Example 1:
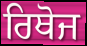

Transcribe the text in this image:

ਰਿਥੋਜ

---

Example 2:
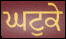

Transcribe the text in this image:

ਘਟੁਕੇ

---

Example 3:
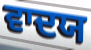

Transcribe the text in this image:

ਵਾਦਯ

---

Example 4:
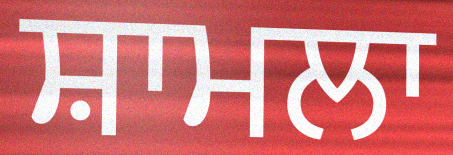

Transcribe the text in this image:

ਸ਼ਾਮਲਾ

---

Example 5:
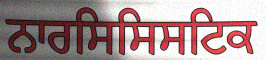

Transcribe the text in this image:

ਨਾਰਸਿਸਿਸਟਿਕ